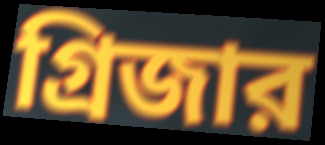
গ্রিজার